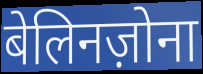
बेलिनज़ोना